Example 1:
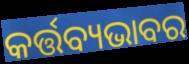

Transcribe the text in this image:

କର୍ତ୍ତବ୍ୟଭାବର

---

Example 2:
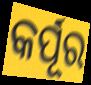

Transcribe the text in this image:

କର୍ପୂର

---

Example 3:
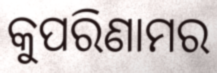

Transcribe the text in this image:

କୁପରିଣାମର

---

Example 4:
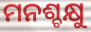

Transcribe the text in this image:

ମନଶ୍ଚକ୍ଷୁ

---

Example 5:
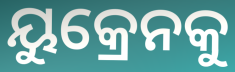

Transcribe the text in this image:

ୟୁକ୍ରେନକୁ